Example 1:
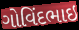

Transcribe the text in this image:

ગોવિંદભાઇ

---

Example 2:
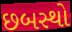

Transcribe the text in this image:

છબસ્થો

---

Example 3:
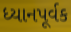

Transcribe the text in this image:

ધ્યાનપૂર્વક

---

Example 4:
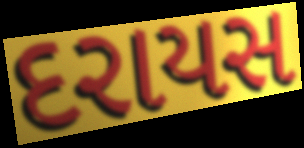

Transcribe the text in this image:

દરાયસ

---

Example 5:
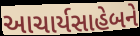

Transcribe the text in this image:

આચાર્યસાહેબને